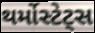
થર્મોસ્ટેટ્સ